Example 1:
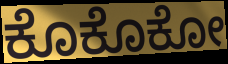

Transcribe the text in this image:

ಕೊಕೊಕೋ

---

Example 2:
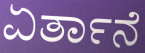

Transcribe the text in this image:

ಏರ್ತಾನೆ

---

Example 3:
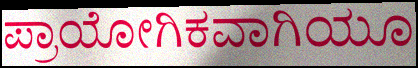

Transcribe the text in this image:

ಪ್ರಾಯೋಗಿಕವಾಗಿಯೂ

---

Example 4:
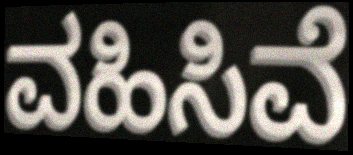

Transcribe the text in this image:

ವಹಿಸಿವೆ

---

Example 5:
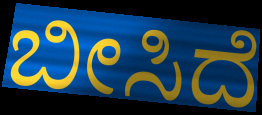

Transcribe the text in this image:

ಬೀಸಿದೆ